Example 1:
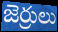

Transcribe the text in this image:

జెర్రులు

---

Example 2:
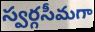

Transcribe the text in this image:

స్వర్గసీమగా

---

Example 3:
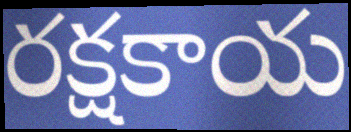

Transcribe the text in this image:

రక్షకాయ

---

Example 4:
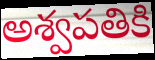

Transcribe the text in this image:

అశ్వపతికి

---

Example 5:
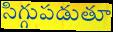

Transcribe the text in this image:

సిగ్గుపడుతూ